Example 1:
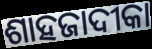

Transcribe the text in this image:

ଶାହଜାଦୀକା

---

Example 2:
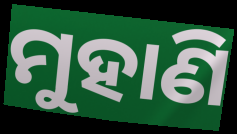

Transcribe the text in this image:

ମୁହାଣି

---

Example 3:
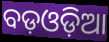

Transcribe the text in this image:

ବଡ଼ଓଡ଼ିଆ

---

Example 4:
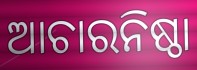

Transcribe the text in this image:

ଆଚାରନିଷ୍ଠା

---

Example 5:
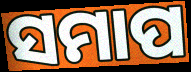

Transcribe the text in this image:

ସମାପ